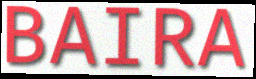
BAIRA